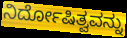
ನಿರ್ದೋಷಿತ್ವವನ್ನು